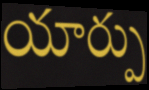
యార్పు